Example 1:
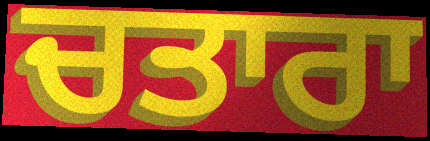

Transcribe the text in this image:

ਚਤਾਰਾ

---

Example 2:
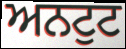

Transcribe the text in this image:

ਅਨਟੁਟ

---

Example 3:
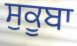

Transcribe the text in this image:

ਸੁਕੂਬਾ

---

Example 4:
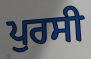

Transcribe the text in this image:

ਪੁਰਸੀ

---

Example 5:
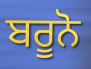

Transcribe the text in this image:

ਬਰੂਨੋ